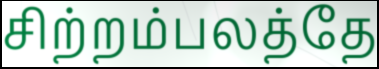
சிற்றம்பலத்தே